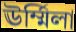
ঊর্ম্মিলা